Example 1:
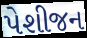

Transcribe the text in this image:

પેશીજન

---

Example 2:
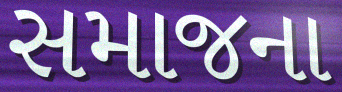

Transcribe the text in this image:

સમાજના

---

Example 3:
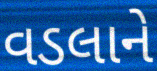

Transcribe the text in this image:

વડલાને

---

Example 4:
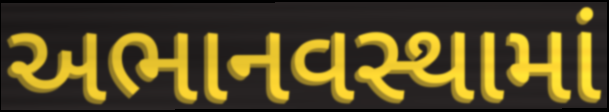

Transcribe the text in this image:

અભાનવસ્થામાં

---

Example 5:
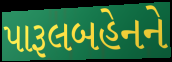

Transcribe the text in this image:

પારૂલબહેનને